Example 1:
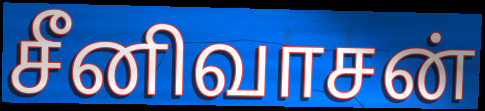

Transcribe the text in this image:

சீனிவாசன்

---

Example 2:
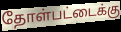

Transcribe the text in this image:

தோள்பட்டைக்கு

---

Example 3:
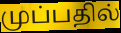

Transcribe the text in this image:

முப்பதில்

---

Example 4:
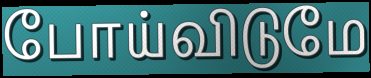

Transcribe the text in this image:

போய்விடுமே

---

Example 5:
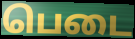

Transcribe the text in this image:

பெடை